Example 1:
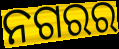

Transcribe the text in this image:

ନଗରର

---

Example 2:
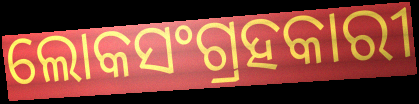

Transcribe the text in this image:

ଲୋକସଂଗ୍ରହକାରୀ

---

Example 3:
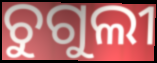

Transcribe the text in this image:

ଚୁଗୁଲୀ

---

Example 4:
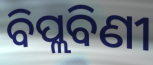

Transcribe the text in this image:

ବିପ୍ଲବିଣୀ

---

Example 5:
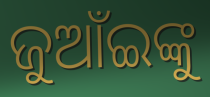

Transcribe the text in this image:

ଜୁଆଁଇଙ୍କୁ